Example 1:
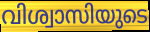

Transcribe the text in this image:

വിശ്വാസിയുടെ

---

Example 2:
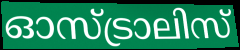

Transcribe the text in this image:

ഓസ്ട്രാലിസ്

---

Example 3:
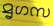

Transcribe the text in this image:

മൃഗസ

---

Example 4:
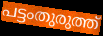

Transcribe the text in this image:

പട്ടംതുരുത്ത്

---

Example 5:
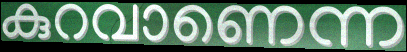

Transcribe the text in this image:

കുറവാണെന്ന